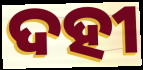
ଦହୀ